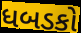
ધબડકો